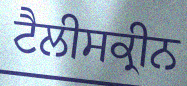
ਟੈਲੀਸਕ੍ਰੀਨ